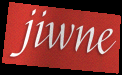
jiwne